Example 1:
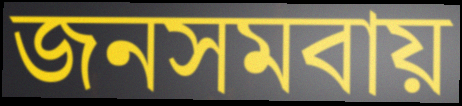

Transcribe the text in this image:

জনসমবায়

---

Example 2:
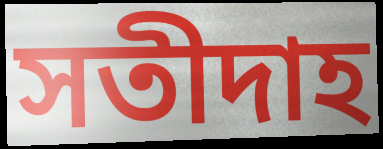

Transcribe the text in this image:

সতীদাহ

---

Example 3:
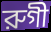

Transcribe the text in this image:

রুগী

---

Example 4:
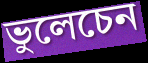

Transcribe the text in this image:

ভুলেচেন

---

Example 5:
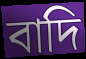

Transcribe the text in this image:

বাদি